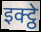
इक्ट्ठे